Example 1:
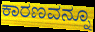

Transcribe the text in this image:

ಕಾರಣವನ್ನೂ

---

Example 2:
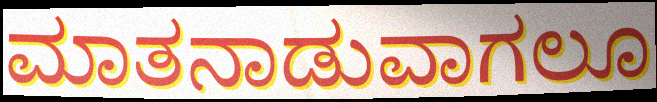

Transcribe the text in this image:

ಮಾತನಾಡುವಾಗಲೂ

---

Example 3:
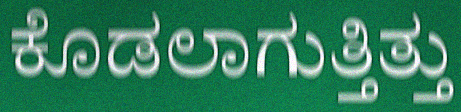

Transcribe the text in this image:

ಕೊಡಲಾಗುತ್ತಿತ್ತು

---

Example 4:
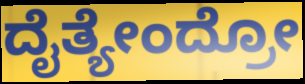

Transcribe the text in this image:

ದೈತ್ಯೇಂದ್ರೋ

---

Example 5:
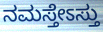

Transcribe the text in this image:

ನಮಸ್ತೇಽಸ್ತು